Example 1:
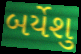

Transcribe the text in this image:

બર્યેશુ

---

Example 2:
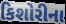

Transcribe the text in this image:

કિશોરીના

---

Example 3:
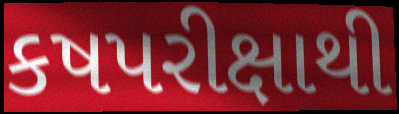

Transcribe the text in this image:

કષપરીક્ષાથી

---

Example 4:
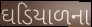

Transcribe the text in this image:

ઘડિયાળના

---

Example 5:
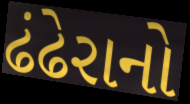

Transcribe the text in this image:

ઢંઢેરાનો